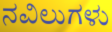
ನವಿಲುಗಳು